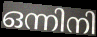
ഒന്നിനി